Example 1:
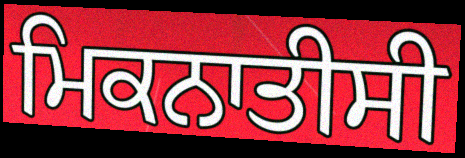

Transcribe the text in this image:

ਮਿਕਨਾਤੀਸੀ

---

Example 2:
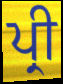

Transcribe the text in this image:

ਪ੍ਰੀ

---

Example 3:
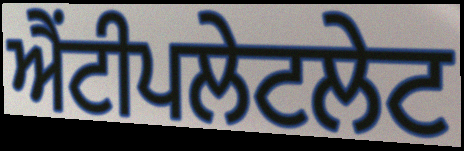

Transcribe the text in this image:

ਐਂਟੀਪਲੇਟਲੇਟ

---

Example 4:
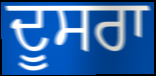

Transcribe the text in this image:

ਦੂਸਰਾ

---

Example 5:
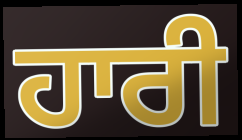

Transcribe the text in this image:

ਹਾਰੀ